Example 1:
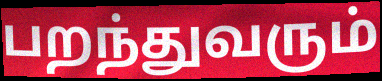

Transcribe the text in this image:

பறந்துவரும்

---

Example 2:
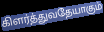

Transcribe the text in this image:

கிளர்த்துவதேயாகும்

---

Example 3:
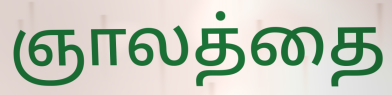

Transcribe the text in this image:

ஞாலத்தை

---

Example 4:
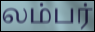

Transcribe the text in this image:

லம்பர்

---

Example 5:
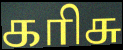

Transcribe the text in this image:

கரிசு